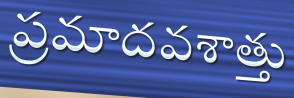
ప్రమాదవశాత్తు